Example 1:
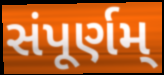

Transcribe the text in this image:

સંપૂર્ણમ્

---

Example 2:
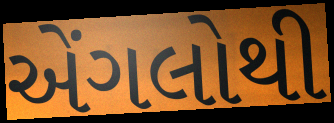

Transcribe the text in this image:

એંગલોથી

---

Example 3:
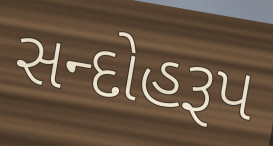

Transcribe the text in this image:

સન્દોહરૂપ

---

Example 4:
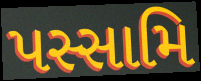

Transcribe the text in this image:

પસ્સામિ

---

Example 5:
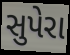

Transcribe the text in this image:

સુપેરા